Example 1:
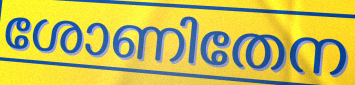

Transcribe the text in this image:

ശോണിതേന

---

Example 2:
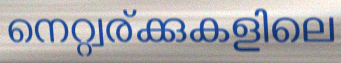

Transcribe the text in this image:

നെറ്റ്വര്ക്കുകളിലെ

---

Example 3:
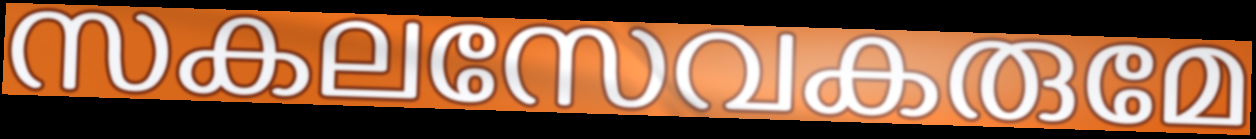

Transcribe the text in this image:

സകലസേവകരുമേ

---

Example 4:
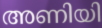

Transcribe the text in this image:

അണിയി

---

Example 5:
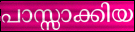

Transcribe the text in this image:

പാസ്സാക്കിയ